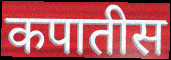
कपातीस